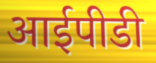
आईपीडी